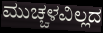
ಮುಚ್ಚಳವಿಲ್ಲದ